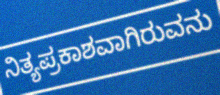
ನಿತ್ಯಪ್ರಕಾಶವಾಗಿರುವನು